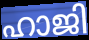
ഹാജി